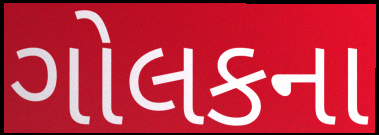
ગોલકના